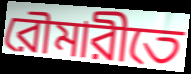
রৌমারীতে